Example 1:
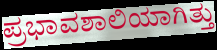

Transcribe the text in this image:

ಪ್ರಭಾವಶಾಲಿಯಾಗಿತ್ತು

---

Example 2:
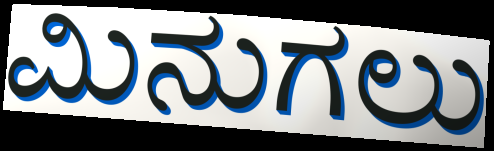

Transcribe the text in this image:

ಮಿನುಗಲು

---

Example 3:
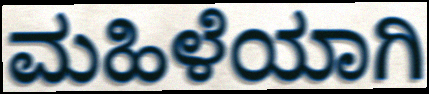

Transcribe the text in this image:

ಮಹಿಳೆಯಾಗಿ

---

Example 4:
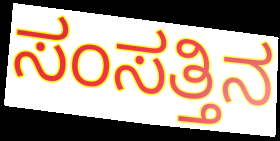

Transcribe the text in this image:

ಸಂಸತ್ತಿನ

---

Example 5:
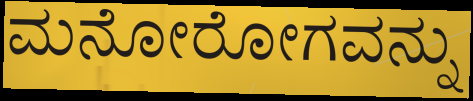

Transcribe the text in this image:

ಮನೋರೋಗವನ್ನು